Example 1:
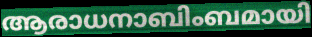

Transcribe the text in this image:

ആരാധനാബിംബമായി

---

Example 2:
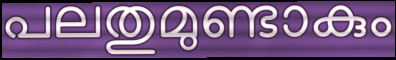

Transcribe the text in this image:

പലതുമുണ്ടാകും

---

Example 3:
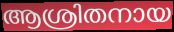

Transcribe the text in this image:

ആശ്രിതനായ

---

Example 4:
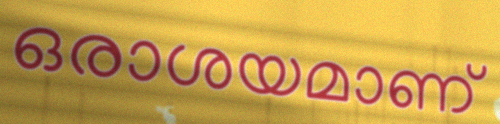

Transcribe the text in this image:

ഒരാശയമാണ്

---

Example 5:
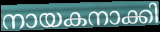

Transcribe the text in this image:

നായകനാക്കി